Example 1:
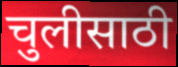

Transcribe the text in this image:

चुलीसाठी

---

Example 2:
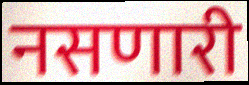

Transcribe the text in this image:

नसणारी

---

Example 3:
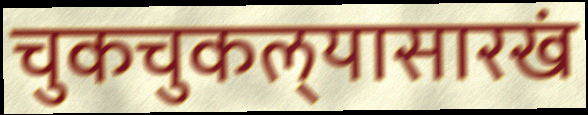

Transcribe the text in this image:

चुकचुकल्यासारखं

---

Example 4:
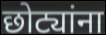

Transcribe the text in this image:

छोट्यांना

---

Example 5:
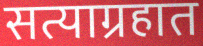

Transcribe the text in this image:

सत्याग्रहात